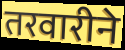
तरवारीने